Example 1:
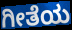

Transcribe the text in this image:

ಗೀತೆಯ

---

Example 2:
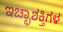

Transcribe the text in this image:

ಇಚ್ಛಾಶಕ್ತಿಗಳ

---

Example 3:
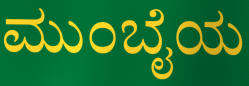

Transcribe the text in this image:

ಮುಂಬೈಯ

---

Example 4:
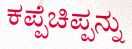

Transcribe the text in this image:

ಕಪ್ಪೆಚಿಪ್ಪನ್ನು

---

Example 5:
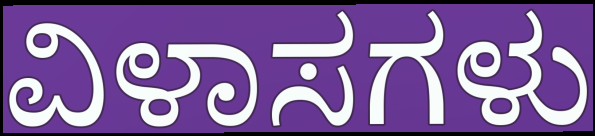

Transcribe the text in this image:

ವಿಳಾಸಗಳು